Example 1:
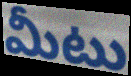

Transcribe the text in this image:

మీటు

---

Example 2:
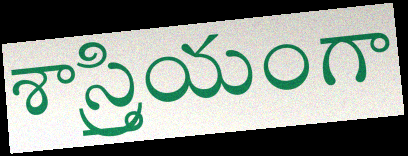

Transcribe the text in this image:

శాస్ర్తియంగా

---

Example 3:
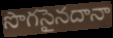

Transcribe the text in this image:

సొగసైనదానా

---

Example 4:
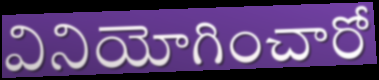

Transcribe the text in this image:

వినియోగించారో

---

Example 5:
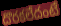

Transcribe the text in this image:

దొరకలేదంటే